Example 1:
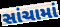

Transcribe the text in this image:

સાંચામાં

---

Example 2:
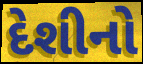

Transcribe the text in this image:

દેશીનો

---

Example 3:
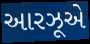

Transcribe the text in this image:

આરઝૂએ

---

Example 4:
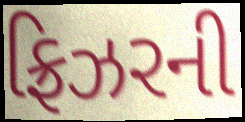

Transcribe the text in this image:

ફ્રિઝરની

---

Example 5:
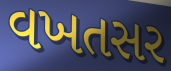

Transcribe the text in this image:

વખતસર